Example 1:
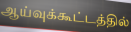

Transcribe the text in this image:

ஆய்வுக்கூட்டத்தில்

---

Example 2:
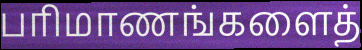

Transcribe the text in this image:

பரிமாணங்களைத்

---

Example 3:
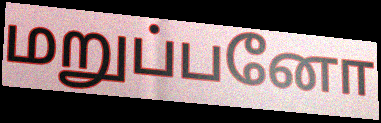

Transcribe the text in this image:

மறுப்பனோ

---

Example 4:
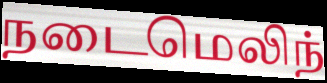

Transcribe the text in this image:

நடைமெலிந்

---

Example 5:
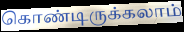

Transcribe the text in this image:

கொண்டிருக்கலாம்